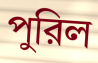
পুরিল